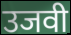
उजवी